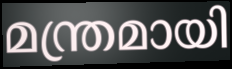
മന്ത്രമായി